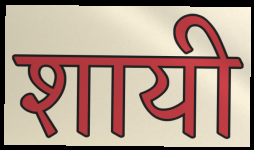
शायी